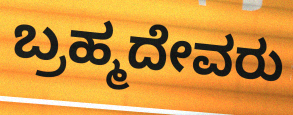
ಬ್ರಹ್ಮದೇವರು